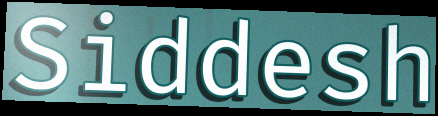
Siddesh